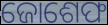
ଜୋଶେଫ